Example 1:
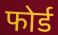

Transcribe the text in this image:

फोर्ड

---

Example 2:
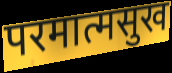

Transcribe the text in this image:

परमात्मसुख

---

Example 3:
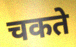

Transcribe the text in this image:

चकते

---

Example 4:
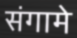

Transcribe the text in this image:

संगामे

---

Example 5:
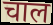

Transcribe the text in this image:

चाल